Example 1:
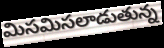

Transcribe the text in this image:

మిసమిసలాడుతున్న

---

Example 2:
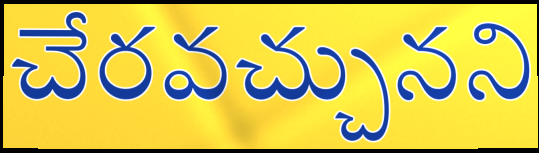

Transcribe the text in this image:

చేరవచ్చునని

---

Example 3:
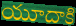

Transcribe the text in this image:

యూదాకి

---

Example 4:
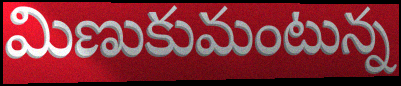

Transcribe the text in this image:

మిణుకుమంటున్న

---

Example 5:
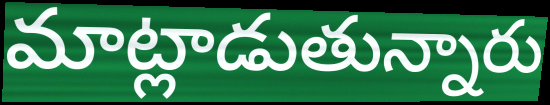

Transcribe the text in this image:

మాట్లాడుతున్నారు